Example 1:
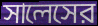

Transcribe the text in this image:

সালেসের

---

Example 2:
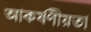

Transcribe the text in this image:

আকর্ষণীয়তা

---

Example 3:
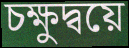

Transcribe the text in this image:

চক্ষুদ্বয়ে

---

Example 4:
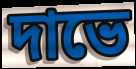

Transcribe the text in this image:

দাভে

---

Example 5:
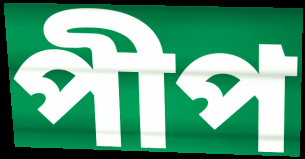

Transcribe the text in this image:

পীপ